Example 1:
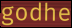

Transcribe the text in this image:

godhe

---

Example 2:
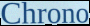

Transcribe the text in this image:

Chrono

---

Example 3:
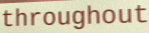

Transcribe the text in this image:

throughout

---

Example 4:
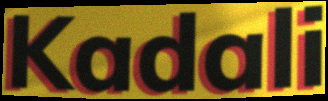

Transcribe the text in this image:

Kadali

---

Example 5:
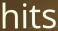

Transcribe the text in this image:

hits